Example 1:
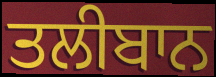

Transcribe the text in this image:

ਤਲੀਬਾਨ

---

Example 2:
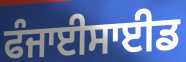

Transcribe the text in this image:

ਫੰਜਾਈਸਾਈਡ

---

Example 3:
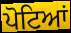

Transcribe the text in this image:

ਪੋਟਿਆਂ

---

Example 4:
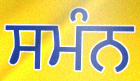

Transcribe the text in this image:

ਸਮੰਨ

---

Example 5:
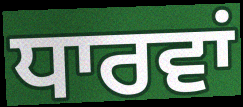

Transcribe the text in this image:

ਧਾਰਵਾਂ